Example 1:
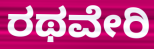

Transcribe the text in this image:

ರಥವೇರಿ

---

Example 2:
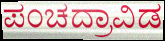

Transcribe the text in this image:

ಪಂಚದ್ರಾವಿಡ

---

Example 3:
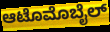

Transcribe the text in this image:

ಆಟೊಮೊಬೈಲ್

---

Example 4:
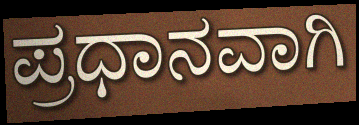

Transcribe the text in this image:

ಪ್ರಧಾನವಾಗಿ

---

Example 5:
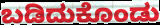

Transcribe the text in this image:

ಬಡಿದುಕೊಂಡು